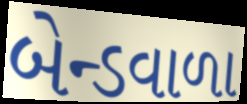
બેન્ડવાળા